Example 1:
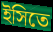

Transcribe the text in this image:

ইসিতে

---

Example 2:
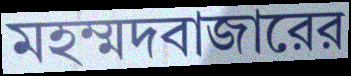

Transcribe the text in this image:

মহম্মদবাজারের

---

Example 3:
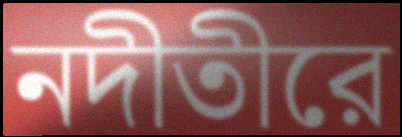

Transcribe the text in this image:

নদীতীরে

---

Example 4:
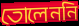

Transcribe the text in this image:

তোলেননি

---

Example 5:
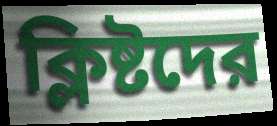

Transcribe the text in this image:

ক্লিষ্টদের